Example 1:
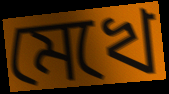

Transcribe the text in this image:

মেখে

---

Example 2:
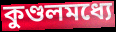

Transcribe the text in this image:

কুণ্ডলমধ্যে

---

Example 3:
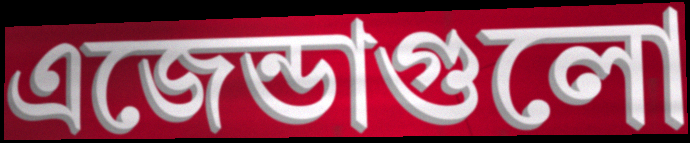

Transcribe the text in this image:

এজেন্ডাগুলো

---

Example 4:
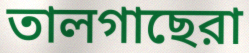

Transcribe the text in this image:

তালগাছেরা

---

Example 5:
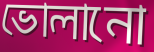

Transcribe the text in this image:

ভোলানো